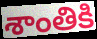
శాంతికి